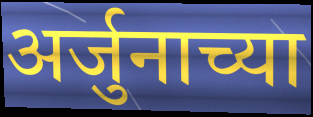
अर्जुनाच्या